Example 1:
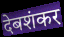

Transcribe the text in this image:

देबशंकर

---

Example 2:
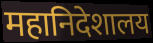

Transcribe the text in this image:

महानिदेशालय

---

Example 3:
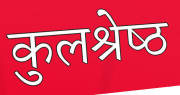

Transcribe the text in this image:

कुलश्रेष्‍ठ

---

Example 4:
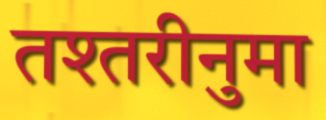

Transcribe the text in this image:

तश्तरीनुमा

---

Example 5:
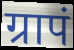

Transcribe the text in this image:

ग्रापं